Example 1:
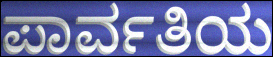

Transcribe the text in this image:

ಪಾರ್ವತಿಯ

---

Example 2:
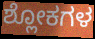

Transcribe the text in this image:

ಶ್ಲೋಕಗಳ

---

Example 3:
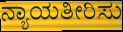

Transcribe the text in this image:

ನ್ಯಾಯತೀರಿಸು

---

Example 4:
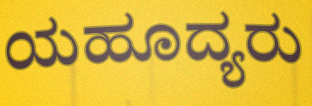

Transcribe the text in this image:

ಯಹೂದ್ಯರು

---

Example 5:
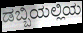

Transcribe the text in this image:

ಡಬ್ಬಿಯಲ್ಲಿಯ